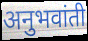
अनुभवांती